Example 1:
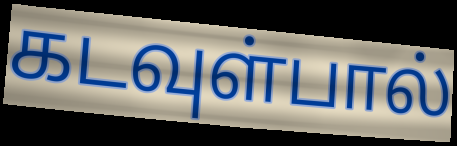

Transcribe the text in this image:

கடவுள்பால்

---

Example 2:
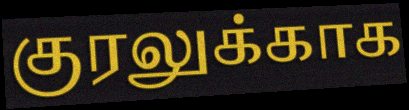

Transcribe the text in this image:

குரலுக்காக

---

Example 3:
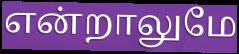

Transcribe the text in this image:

என்றாலுமே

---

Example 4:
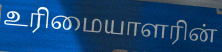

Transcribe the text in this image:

உரிமையாளரின்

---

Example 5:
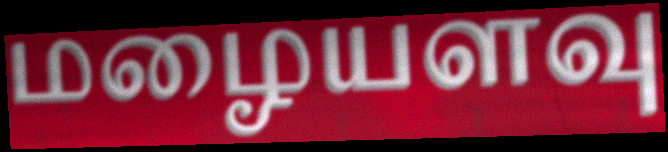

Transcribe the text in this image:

மழையளவு